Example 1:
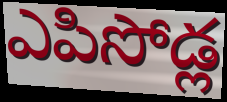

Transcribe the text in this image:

ఎపిసోడ్ల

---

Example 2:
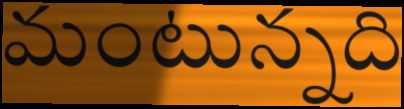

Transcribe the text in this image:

మంటున్నది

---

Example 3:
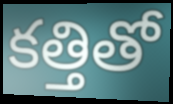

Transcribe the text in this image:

కత్తితో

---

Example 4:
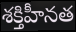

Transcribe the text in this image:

శక్తిహీనత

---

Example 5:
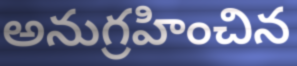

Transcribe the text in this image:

అనుగ్రహించిన